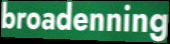
broadenning